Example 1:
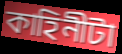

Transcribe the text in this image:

কাহিনীটা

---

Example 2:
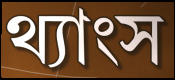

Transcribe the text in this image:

থ্যাংস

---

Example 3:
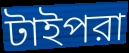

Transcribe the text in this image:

টাইপরা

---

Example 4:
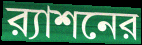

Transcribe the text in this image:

র‍্যাশনের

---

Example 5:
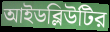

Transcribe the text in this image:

আইডব্লিউটির